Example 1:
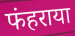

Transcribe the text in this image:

फंहराया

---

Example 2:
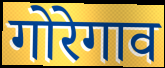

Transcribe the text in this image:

गोरेगाव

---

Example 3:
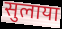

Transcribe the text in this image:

सुलाया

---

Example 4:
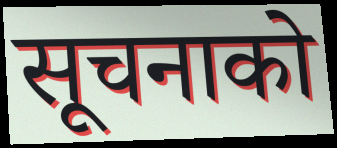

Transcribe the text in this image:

सूचनाको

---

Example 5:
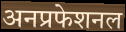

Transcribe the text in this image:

अनप्रफेशनल